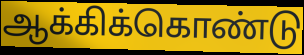
ஆக்கிக்கொண்டு